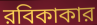
রবিকাকার